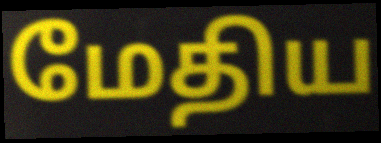
மேதிய